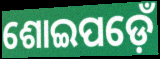
ଶୋଇପଡ଼େଁ